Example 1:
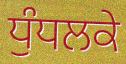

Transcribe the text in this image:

ਧੁੰਧਲਕੇ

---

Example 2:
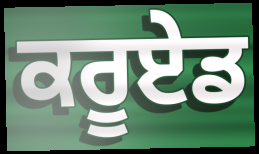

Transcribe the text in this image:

ਕਰੂਏਡ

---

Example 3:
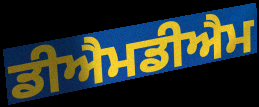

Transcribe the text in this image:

ਡੀਐਮਡੀਐਮ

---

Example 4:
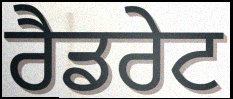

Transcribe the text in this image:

ਰੈਡਰੇਟ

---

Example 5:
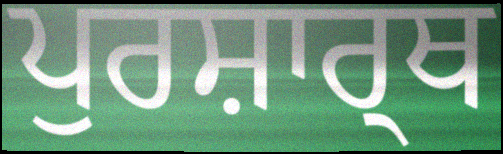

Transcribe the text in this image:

ਪੁਰਸ਼ਾਰ੍ਥ